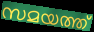
സമയത്ത്